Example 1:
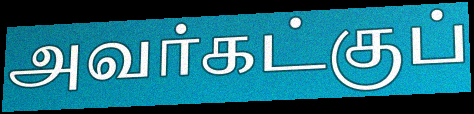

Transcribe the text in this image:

அவர்கட்குப்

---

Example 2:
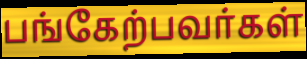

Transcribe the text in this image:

பங்கேற்பவர்கள்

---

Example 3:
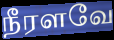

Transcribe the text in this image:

நீரளவே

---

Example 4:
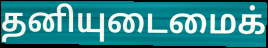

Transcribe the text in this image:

தனியுடைமைக்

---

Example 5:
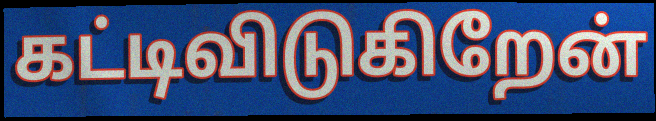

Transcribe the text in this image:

கட்டிவிடுகிறேன்